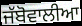
ਜੱਬੋਵਾਲੀਆ